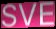
SVE